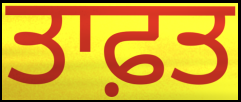
ਤਾਫ਼ਤ